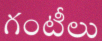
గంటీలు